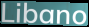
Libano